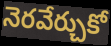
నెరవేర్చుకో